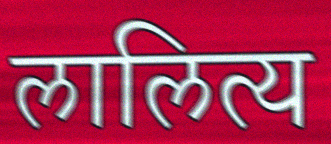
लालित्य